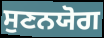
ਸੁਣਨਯੋਗ